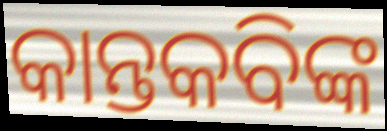
କାନ୍ତକବିଙ୍କ